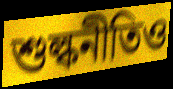
শুল্কনীতিও